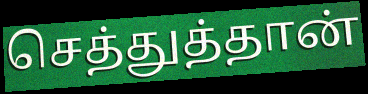
செத்துத்தான்